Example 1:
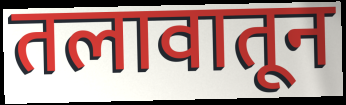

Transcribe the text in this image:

तलावातून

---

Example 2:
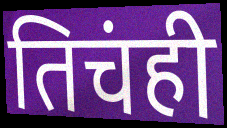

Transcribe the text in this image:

तिचंही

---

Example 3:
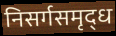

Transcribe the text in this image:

निसर्गसमृद्ध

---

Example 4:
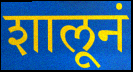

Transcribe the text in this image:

शालूनं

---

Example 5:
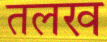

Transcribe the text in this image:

तलख